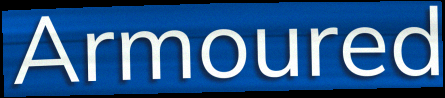
Armoured